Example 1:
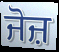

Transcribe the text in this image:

ਜੋਜ਼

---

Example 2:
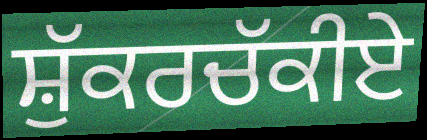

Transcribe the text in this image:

ਸ਼ੁੱਕਰਚੱਕੀਏ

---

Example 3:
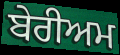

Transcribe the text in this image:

ਬੇਰੀਅਮ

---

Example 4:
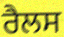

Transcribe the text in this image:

ਰੈਲਸ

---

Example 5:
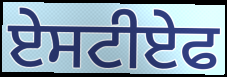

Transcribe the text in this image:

ਏਸਟੀਏਫ